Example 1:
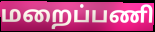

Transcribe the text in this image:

மறைப்பணி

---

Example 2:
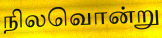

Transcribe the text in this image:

நிலவொன்று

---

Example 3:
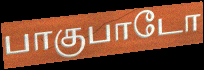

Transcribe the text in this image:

பாகுபாடோ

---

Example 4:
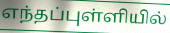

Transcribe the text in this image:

எந்தப்புள்ளியில்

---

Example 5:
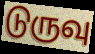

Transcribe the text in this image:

டுருவு